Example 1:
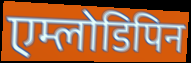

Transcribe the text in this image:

एम्लोडिपिन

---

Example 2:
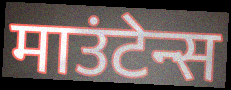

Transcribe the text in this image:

माउंटेन्स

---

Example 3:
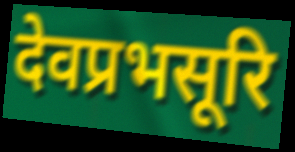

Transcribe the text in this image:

देवप्रभसूरि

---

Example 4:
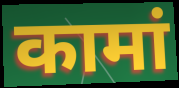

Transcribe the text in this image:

कामां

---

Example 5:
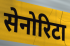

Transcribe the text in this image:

सेनोरिटा